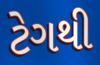
ટેગથી